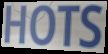
HOTS